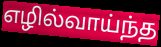
எழில்வாய்ந்த